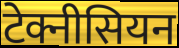
टेक्नीसियन